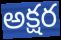
అక్షర